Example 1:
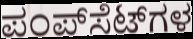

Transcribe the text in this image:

ಪಂಪ್‌ಸೆಟ್‌ಗಳ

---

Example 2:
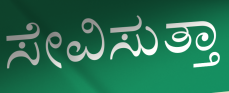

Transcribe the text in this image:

ಸೇವಿಸುತ್ತಾ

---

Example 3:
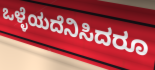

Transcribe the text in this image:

ಒಳ್ಳೆಯದೆನಿಸಿದರೂ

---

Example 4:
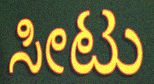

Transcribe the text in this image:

ಸೀಟು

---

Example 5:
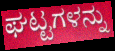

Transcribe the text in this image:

ಘಟ್ಟಗಳನ್ನು